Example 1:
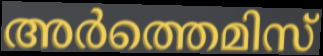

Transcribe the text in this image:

അർത്തെമിസ്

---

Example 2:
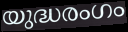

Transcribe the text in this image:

യുദ്ധരംഗം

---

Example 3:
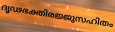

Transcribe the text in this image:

ദൃഢഭക്തിരജ്ജുസഹിതം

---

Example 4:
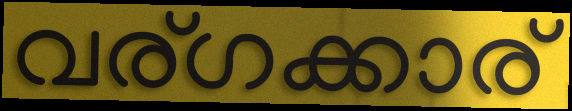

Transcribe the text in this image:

വര്ഗക്കാര്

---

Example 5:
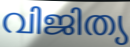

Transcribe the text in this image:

വിജിത്യ